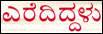
ಎರೆದಿದ್ದಳು